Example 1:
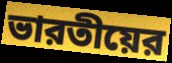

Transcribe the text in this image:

ভারতীয়ের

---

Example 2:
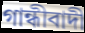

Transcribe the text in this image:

গান্ধীবাদী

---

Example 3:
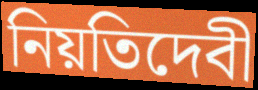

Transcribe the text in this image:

নিয়তিদেবী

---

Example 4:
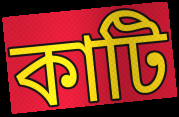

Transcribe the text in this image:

কাটি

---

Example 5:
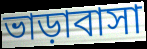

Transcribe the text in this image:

ভাড়াবাসা